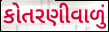
કોતરણીવાળું